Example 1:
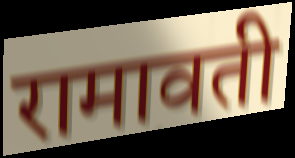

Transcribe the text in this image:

रामावती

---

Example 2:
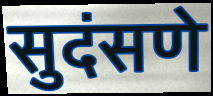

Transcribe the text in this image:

सुदंसणे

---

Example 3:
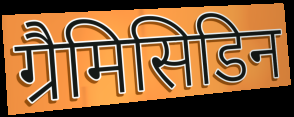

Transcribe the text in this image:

ग्रैमिसिडिन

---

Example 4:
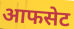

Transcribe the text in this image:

आफसेट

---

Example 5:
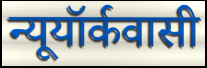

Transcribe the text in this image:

न्यूयॉर्कवासी